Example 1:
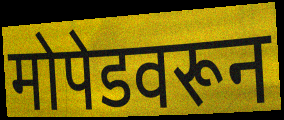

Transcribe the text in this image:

मोपेडवरून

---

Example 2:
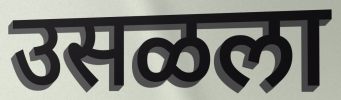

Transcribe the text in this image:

उसळला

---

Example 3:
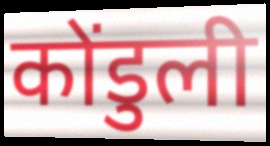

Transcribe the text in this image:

कोंडुली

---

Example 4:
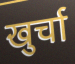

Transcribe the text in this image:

खुर्चा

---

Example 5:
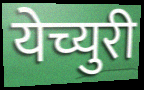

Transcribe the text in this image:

येच्युरी